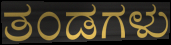
ತಂಡಗಳು